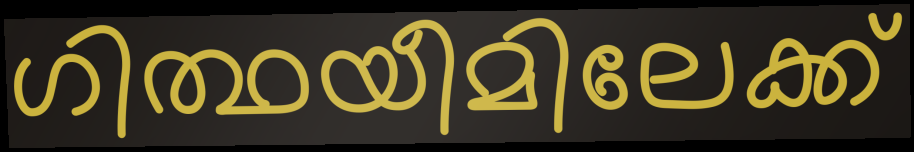
ഗിത്ഥയീമിലേക്ക്